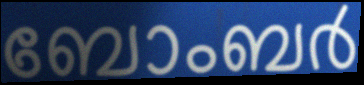
ബോംബർ